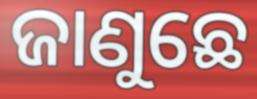
ଜାଣୁଛେ